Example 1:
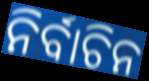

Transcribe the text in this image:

ନିର୍ବାଚିନ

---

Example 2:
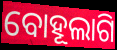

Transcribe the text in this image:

ବୋହୂଲାଗି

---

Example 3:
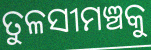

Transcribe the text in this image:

ତୁଳସୀମଞ୍ଚକୁ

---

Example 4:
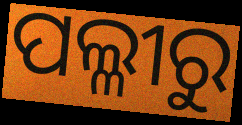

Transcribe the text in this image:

ପଲ୍ଳୀରୁ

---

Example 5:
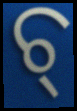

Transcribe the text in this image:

ଚ୍